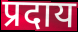
प्रदाय